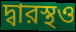
দ্বারস্থও